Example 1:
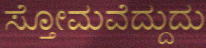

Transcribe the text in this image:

ಸ್ತೋಮವೆದ್ದುದು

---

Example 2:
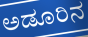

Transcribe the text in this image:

ಅಡೂರಿನ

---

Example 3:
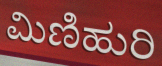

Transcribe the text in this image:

ಮಿಣಿಹುರಿ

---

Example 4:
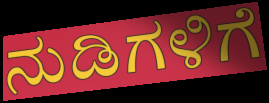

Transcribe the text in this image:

ನುಡಿಗಳಿಗೆ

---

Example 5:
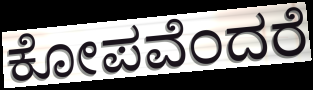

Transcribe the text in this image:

ಕೋಪವೆಂದರೆ